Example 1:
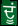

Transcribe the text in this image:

ਦੂਂ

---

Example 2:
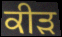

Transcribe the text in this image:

ਕੀੜ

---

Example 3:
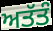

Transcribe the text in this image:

ਅਤੱਤੰ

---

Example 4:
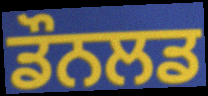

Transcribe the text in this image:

ਡੌਨਲਡ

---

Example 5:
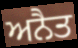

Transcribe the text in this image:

ਅਨੈਤ